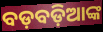
ବଡ଼ବଡ଼ିଆଙ୍କ